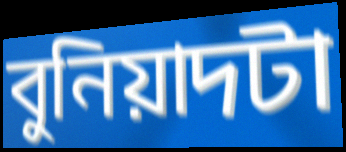
বুনিয়াদটা